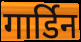
गार्डिन